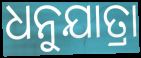
ଧନୁଯାତ୍ରା